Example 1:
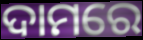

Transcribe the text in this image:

ଦାମରେ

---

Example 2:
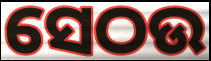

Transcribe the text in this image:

ସେଠଉ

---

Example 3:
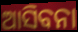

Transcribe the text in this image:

ଆସିବନା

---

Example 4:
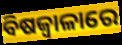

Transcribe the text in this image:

ବିଷଜ୍ୱାଳାରେ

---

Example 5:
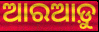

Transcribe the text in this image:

ଆରଆଡ଼ୁ